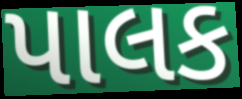
પાલક